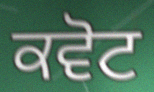
ਕਵੋਟ